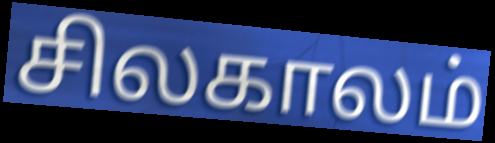
சிலகாலம்